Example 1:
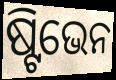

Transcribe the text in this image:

ଷ୍ଟିଭେନ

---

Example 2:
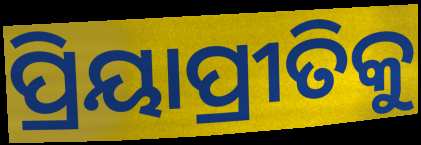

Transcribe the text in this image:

ପ୍ରିୟାପ୍ରୀତିକୁ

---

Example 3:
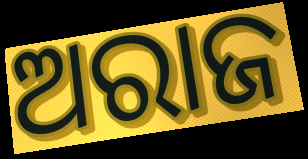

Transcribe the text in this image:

ଅରାଜ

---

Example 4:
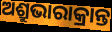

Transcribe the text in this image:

ଅଶ୍ରୁଭାରାକ୍ରାନ୍ତ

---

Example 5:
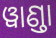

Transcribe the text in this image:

ୱାଣ୍ଡା